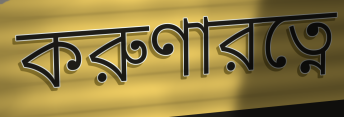
করুণারত্নে